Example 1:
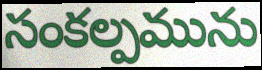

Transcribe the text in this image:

సంకల్పమును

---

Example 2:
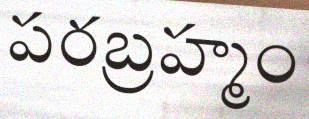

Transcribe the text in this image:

పరబ్రహ్మం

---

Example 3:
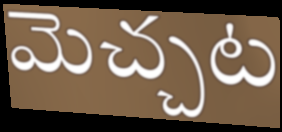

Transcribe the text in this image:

మెచ్చట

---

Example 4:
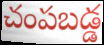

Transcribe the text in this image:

చంపబడ్డ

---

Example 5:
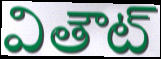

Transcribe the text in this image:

వితౌట్